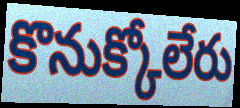
కొనుక్కోలేరు